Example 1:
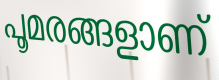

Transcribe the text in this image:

പൂമരങ്ങളാണ്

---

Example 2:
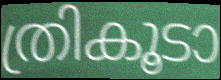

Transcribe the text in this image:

ത്രികൂടാ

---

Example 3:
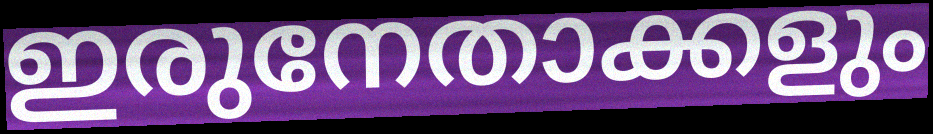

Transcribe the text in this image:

ഇരുനേതാക്കളും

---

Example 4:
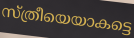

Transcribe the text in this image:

സ്ത്രീയെയാകട്ടെ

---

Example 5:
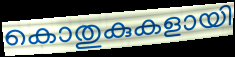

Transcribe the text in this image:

കൊതുകുകളായി